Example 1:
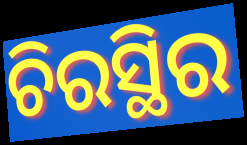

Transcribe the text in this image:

ଚିରସ୍ଥିର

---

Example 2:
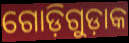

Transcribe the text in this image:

ଗୋଡ଼ିଗୁଡ଼ାକ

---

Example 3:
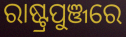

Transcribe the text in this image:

ରାଷ୍ଟ୍ରପୁଞ୍ଜରେ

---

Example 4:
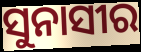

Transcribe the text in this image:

ସୁନାସୀର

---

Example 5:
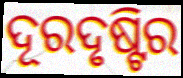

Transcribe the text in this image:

ଦୂରଦୃଷ୍ଟିର